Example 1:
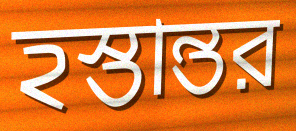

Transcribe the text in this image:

হস্তান্তর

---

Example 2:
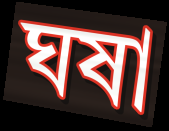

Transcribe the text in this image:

ঘষা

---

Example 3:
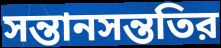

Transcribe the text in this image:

সন্তানসন্ততির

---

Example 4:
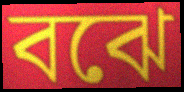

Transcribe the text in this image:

বঝে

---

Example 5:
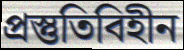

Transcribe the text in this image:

প্রস্তুতিবিহীন